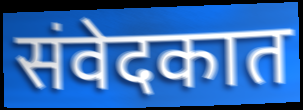
संवेदकात